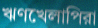
ঋণখেলাপিরা